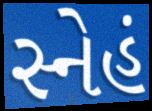
સ્નેહં